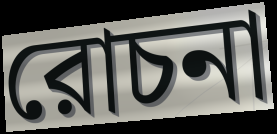
রোচনা